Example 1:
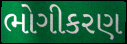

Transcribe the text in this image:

ભોગીકરણ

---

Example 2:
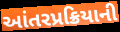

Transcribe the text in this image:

આંતરપ્રક્રિયાની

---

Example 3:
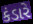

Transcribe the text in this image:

કંડારે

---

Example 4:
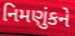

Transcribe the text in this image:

નિમણુંકને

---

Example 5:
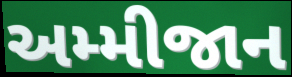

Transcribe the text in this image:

અમ્મીજાન